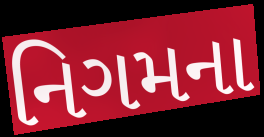
નિગમના